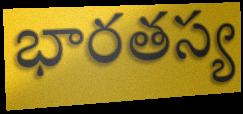
భారతస్య